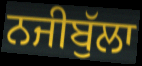
ਨਜੀਬੁੱਲਾ